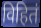
विहितं